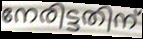
നേരിട്ടതിന്